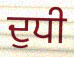
ਦੁਧੀ